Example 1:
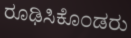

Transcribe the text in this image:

ರೂಢಿಸಿಕೊಂಡರು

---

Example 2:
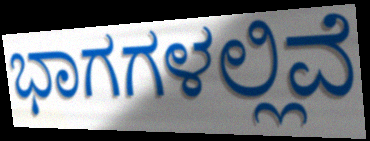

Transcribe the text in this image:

ಭಾಗಗಳಲ್ಲಿವೆ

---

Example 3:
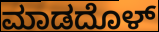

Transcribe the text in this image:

ಮಾಡದೊಳ್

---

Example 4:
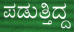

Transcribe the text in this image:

ಪಡುತ್ತಿದ್ದ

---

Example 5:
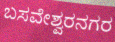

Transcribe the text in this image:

ಬಸವೇಶ್ವರನಗರ